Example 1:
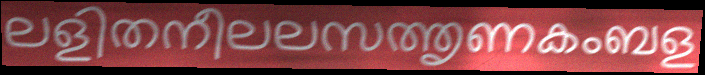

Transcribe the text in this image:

ലളിതനീലലസത്തൃണകംബള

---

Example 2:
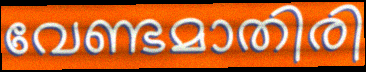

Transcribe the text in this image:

വേണ്ടമാതിരി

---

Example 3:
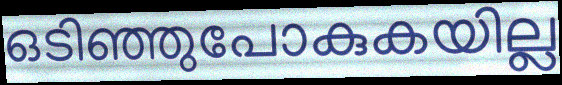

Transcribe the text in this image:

ഒടിഞ്ഞുപോകുകയില്ല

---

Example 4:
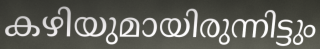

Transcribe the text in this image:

കഴിയുമായിരുന്നിട്ടും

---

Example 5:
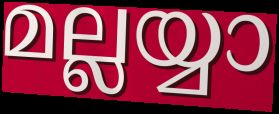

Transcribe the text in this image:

മല്ലയ്യാ